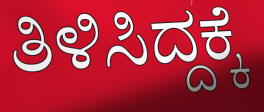
ತಿಳಿಸಿದ್ದಕ್ಕೆ